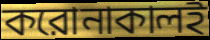
করোনাকালই